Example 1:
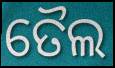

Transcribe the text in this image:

ତୈଲ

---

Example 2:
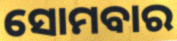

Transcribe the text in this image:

ସୋମବାର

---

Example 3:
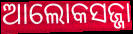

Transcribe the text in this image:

ଆଲୋକସଜ୍ଜା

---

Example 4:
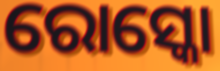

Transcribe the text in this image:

ରୋସ୍କୋ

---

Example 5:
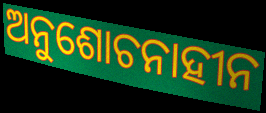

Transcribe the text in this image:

ଅନୁଶୋଚନାହୀନ